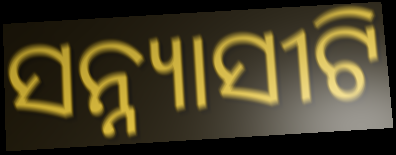
ସନ୍ନ୍ୟାସୀଟି